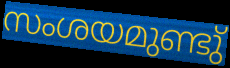
സംശയമുണ്ടു്